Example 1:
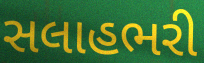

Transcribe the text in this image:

સલાહભરી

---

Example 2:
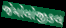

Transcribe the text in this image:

જેમોલોજીકલ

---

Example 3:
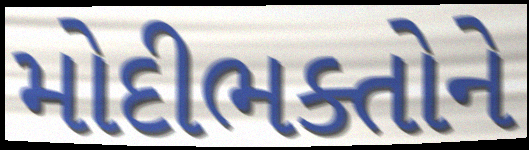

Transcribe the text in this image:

મોદીભક્તોને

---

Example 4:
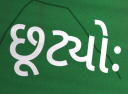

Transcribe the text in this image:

છૂટ્યોઃ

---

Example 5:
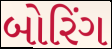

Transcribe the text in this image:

બોરિંગ